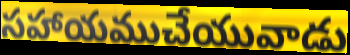
సహాయముచేయువాడు